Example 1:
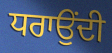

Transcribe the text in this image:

ਧਰਾਉਂਦੀ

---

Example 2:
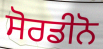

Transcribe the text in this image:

ਸੋਰਡੀਨੋ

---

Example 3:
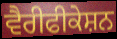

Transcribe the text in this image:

ਵੈਰੀਫੀਕੇਸ਼ਨ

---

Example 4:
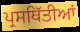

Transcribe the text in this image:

ਪ੍ਰਸਥਿੱਤੀਆਂ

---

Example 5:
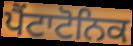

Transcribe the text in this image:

ਪੈਂਟਾਟੋਨਿਕ